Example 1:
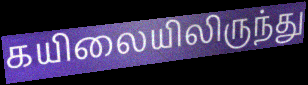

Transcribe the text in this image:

கயிலையிலிருந்து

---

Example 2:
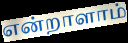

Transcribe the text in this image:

என்றாளாம்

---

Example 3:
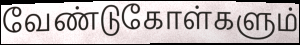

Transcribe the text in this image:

வேண்டுகோள்களும்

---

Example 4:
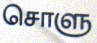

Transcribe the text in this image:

சொளு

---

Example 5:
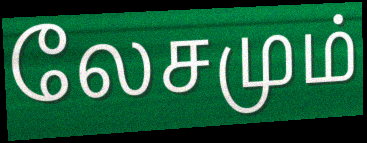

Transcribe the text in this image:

லேசமும்